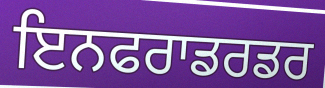
ਇਨਫਰਾਡਰਡਰ